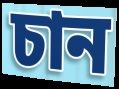
চান